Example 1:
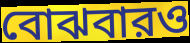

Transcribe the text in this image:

বোঝবারও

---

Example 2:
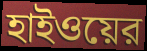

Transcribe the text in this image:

হাইওয়ের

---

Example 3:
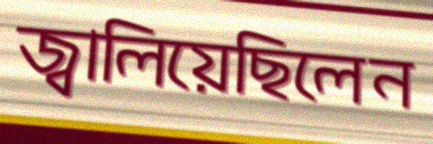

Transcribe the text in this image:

জ্বালিয়েছিলেন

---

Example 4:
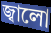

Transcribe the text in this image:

জ্বালো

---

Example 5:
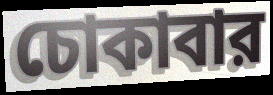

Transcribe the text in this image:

চোকাবার